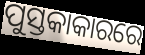
ପୁସ୍ତକାକାରରେ